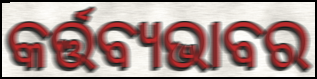
କର୍ତ୍ତବ୍ୟଭାବର